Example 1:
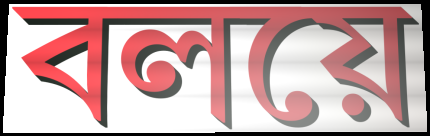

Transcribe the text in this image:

বলয়ে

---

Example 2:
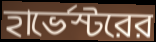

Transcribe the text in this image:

হার্ভেস্টরের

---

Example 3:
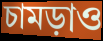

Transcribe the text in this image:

চামড়াও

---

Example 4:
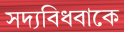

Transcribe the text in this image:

সদ্যবিধবাকে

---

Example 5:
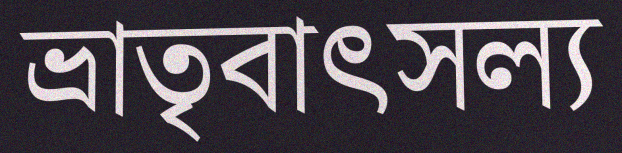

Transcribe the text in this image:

ভ্রাতৃবাৎসল্য